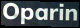
Oparin